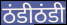
ठंडीठंडी